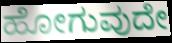
ಹೋಗುವುದೇ